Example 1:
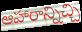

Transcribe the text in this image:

ఆహారాన్నిచ్చి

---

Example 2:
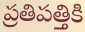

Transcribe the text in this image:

ప్రతిపత్తికి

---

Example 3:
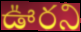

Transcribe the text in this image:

ఊరని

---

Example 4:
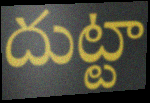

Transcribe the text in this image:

దుట్టా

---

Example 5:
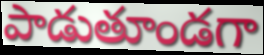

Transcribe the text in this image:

పాడుతూండగా